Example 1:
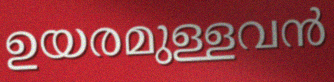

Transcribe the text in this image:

ഉയരമുള്ളവൻ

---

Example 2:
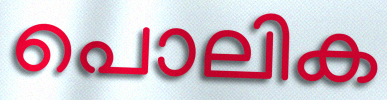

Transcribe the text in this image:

പൊലിക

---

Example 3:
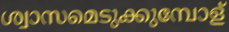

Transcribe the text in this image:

ശ്വാസമെടുക്കുമ്പോള്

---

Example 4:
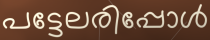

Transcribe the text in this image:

പട്ടേലരിപ്പോൾ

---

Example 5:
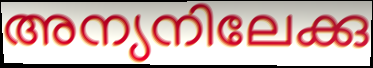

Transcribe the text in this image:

അന്യനിലേക്കു